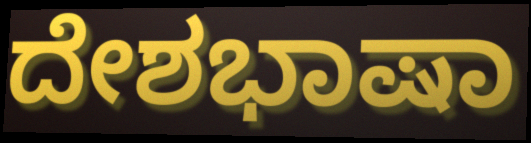
ದೇಶಭಾಷಾ